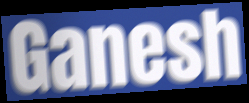
Ganesh